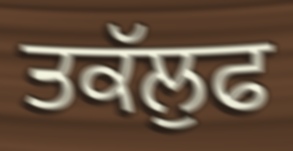
ਤਕੱਲੁਫ